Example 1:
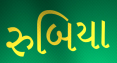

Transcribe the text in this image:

રુબિયા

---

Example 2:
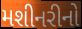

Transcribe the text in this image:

મશીનરીનો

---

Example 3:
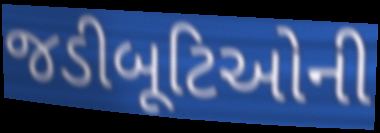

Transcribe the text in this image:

જડીબૂટિઓની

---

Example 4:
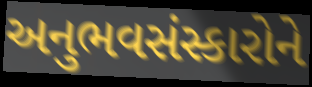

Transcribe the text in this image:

અનુભવસંસ્કારોને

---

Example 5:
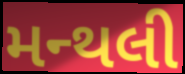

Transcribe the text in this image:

મન્થલી